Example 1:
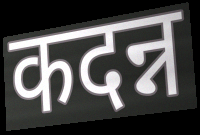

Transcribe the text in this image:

कदन्न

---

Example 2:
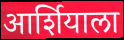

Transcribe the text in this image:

आर्शियाला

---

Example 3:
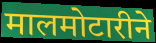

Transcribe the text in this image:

मालमोटारीने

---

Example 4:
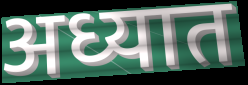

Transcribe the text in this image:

अध्यात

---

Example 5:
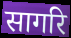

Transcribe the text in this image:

सागरि